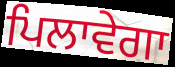
ਪਿਲਾਵੇਗਾ